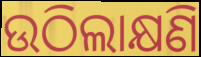
ଉଠିଲାକ୍ଷଣି